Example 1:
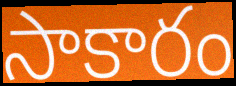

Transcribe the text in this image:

సాకారం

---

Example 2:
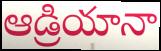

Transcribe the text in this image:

ఆడ్రియానా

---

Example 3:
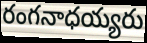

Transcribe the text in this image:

రంగనాధయ్యరు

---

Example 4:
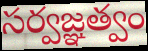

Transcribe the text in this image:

సర్వజ్ఞత్వం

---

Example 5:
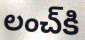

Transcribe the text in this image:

లంచ్‌కి